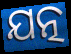
ଯତ୍ନ